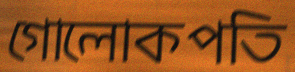
গোলোকপতি